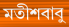
মতীশবাবু